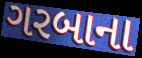
ગરબાના